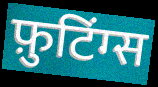
फ़ुटिंग्स